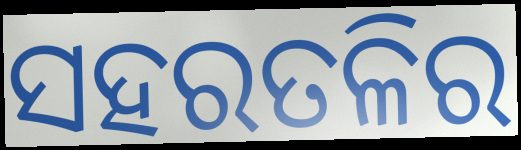
ସହରତଳିର